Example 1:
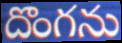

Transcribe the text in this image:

దొంగను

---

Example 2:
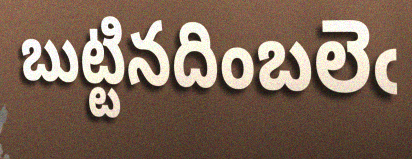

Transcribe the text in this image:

బుట్టినదింబలెఁ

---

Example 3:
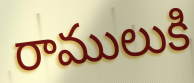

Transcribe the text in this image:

రాములుకి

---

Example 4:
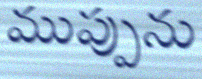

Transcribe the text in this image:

ముప్పును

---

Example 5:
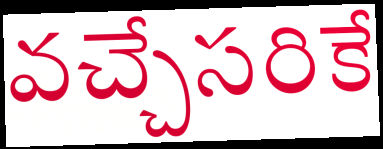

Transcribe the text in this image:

వచ్చేసరికే